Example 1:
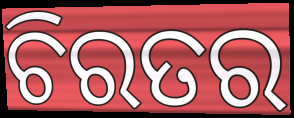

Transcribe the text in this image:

ଚିରତର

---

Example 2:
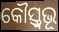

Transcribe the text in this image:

କୌସ୍ତ୍ୱଭୂ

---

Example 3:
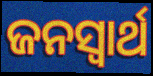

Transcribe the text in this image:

ଜନସ୍ଵାର୍ଥ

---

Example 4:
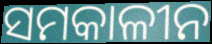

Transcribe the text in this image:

ସମକାଳୀନ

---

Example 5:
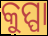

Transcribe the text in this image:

କୁପ୍ପା